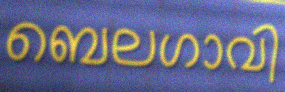
ബെലഗാവി